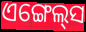
ଏଙ୍ଗେଲ୍‌ସ